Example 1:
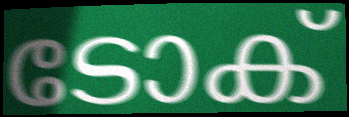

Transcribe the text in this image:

ടോക്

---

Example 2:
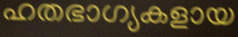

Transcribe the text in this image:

ഹതഭാഗ്യകളായ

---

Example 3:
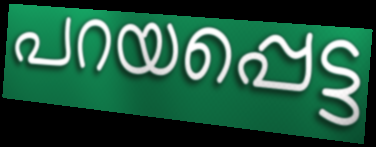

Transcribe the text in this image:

പറയപ്പെട്ട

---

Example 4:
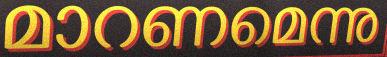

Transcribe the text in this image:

മാറണമെന്നു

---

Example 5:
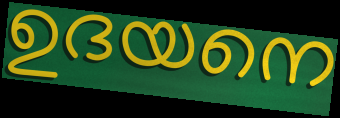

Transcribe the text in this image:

ഉദയനെ